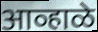
आव्हाळे